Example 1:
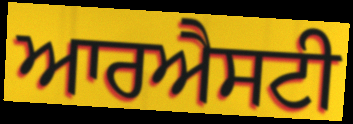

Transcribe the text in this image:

ਆਰਐਸਟੀ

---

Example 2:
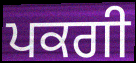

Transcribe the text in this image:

ਪਕਗੀ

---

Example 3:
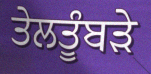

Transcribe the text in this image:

ਤੇਲਤੂੰਬੜੇ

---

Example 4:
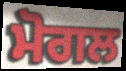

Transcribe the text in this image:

ਮੋਗਲ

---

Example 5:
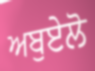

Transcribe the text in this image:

ਅਬੁਏਲੋ